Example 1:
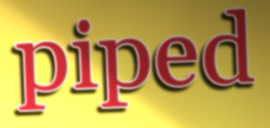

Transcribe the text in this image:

piped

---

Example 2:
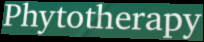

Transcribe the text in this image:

Phytotherapy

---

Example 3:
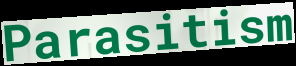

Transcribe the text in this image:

Parasitism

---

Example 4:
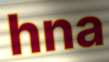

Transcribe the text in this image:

hna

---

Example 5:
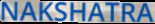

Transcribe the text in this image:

NAKSHATRA